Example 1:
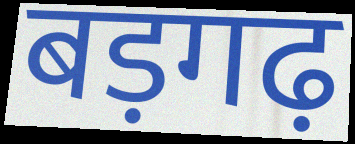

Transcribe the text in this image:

बड़गढ़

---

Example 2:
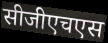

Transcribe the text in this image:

सीजीएचएस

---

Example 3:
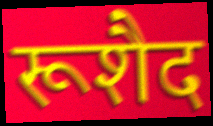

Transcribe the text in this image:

रूशैद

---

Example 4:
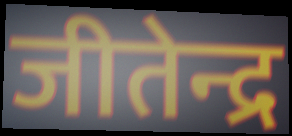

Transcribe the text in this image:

जीतेन्द्र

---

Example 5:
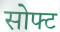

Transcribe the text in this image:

सोफ्ट